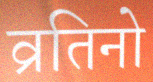
व्रतिनो